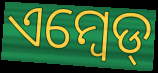
ଏମ୍ବେଡ୍